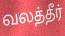
வலத்தீர்